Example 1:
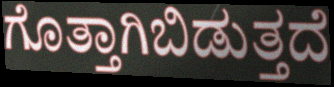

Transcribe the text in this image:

ಗೊತ್ತಾಗಿಬಿಡುತ್ತದೆ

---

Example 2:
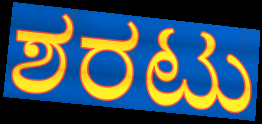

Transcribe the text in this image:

ಶರಟು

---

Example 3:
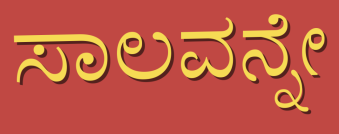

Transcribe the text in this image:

ಸಾಲವನ್ನೇ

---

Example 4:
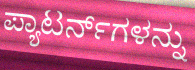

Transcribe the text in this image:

ಪ್ಯಾಟರ್ನ್‌ಗಳನ್ನು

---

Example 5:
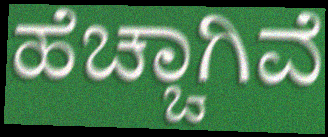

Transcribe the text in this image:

ಹೆಚ್ಚಾಗಿವೆ